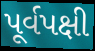
પૂર્વપક્ષી